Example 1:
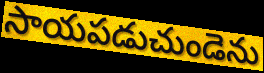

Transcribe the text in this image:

సాయపడుచుండెను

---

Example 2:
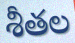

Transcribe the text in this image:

శీతల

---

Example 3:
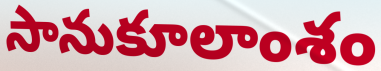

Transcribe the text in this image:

సానుకూలాంశం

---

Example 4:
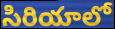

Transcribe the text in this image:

సిరియాలో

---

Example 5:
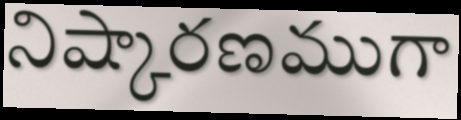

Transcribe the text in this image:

నిష్కారణముగా